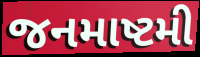
જનમાષ્ટમી